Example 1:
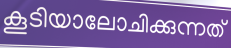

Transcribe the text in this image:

കൂടിയാലോചിക്കുന്നത്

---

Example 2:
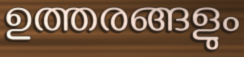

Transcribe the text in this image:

ഉത്തരങ്ങളും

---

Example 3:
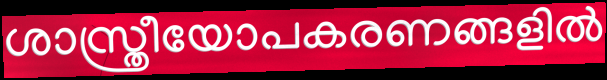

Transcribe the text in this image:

ശാസ്ത്രീയോപകരണങ്ങളിൽ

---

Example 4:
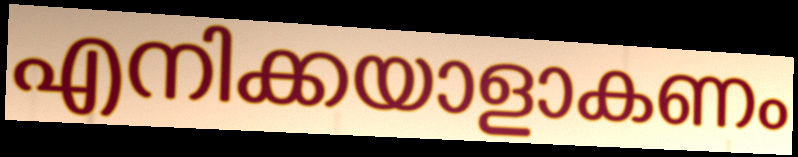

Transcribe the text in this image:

എനിക്കയാളാകണം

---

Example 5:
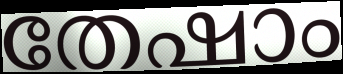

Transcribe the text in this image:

തേഷാം